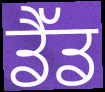
ਡੈੱਡ